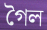
গৈল